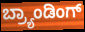
ಬ್ರ್ಯಾಂಡಿಂಗ್